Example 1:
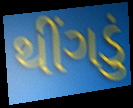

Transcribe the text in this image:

થીંગડું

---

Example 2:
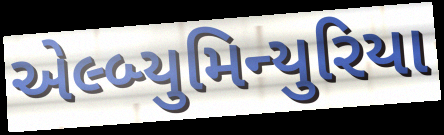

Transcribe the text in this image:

એલ્બ્યુમિન્યુરિયા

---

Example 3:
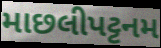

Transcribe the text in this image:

માછલીપટ્ટનમ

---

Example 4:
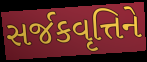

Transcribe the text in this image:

સર્જકવૃત્તિને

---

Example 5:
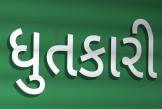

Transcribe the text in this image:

ધુતકારી